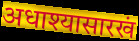
अधाश्यासारखं